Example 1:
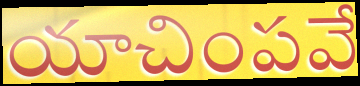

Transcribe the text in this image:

యాచింపవే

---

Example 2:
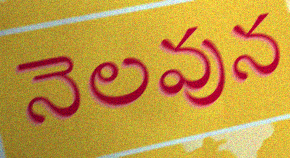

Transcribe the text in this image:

నెలవున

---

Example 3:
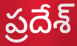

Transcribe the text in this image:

ప్రదేశ్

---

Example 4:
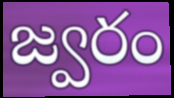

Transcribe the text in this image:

జ్వరం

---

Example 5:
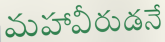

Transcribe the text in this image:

మహావీరుడనే